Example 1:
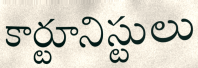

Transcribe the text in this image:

కార్టూనిస్టులు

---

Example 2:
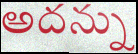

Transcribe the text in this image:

అదన్ను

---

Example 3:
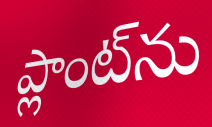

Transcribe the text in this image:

ప్లాంట్‌ను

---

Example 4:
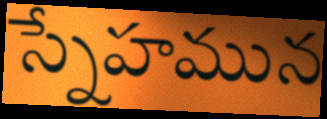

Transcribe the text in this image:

స్నేహమున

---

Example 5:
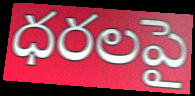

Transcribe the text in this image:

ధరలపై